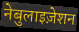
नेबुलाइज़ेशन